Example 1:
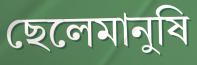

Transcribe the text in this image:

ছেলেমানুষি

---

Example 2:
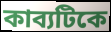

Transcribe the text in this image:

কাব্যটিকে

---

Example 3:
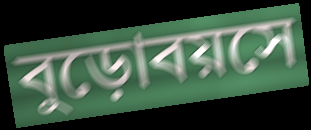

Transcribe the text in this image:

বুড়োবয়সে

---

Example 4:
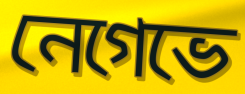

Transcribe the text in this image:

নেগেভে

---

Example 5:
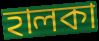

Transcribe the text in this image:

হালকা